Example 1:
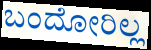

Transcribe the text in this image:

ಬಂದೋರಿಲ್ಲ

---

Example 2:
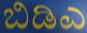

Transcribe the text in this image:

ಬಿಡಿಎ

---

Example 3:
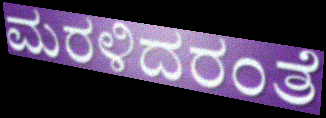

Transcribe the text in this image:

ಮರಳಿದರಂತೆ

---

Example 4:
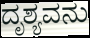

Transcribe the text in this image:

ದೃಶ್ಯವನು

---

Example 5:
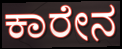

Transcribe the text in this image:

ಕಾರೇನ